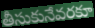
తీసుకునేవరకూ